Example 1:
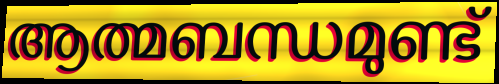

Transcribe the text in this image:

ആത്മബന്ധമുണ്ട്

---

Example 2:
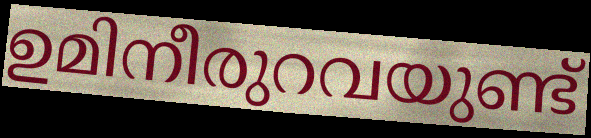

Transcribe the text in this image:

ഉമിനീരുറവയുണ്ട്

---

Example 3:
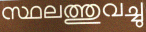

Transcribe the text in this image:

സ്ഥലത്തുവച്ചു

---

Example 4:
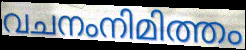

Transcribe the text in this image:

വചനംനിമിത്തം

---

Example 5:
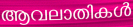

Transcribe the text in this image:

ആവലാതികൾ